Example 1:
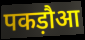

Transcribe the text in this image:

पकड़ौआ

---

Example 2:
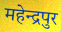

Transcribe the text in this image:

महेन्द्रपुर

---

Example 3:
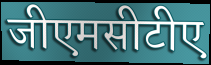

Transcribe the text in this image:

जीएमसीटीए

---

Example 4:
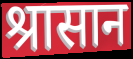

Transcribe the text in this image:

श्रासान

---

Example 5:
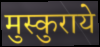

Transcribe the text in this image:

मुस्कुराये